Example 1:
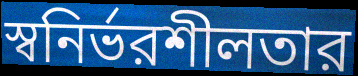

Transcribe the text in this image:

স্বনির্ভরশীলতার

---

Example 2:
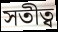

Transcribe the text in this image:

সতীত্ব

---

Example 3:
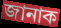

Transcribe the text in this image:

জানাক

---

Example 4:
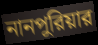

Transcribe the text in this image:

নানপুরিয়ার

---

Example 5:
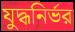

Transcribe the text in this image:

যুদ্ধনির্ভর